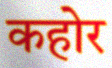
कहोर